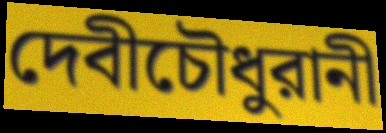
দেবীচৌধুরানী